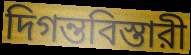
দিগন্তবিস্তারী